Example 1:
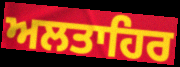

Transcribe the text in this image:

ਅਲਤਾਹਿਰ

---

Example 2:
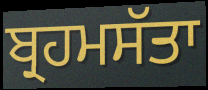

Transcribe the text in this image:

ਬ੍ਰਹਮਸੱਤਾ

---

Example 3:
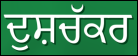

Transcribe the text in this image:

ਦੁਸ਼ਚੱਕਰ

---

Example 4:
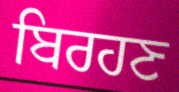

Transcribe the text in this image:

ਬਿਰਹਣ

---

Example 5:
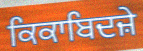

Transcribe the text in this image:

ਕਿਕਾਬਿਦਜ਼ੇ